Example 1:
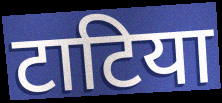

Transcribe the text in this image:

टाटिया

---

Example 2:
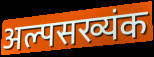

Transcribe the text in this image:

अल्पसख्यंक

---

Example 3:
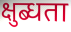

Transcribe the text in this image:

क्षुब्धता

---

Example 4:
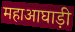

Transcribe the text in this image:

महाआघाड़ी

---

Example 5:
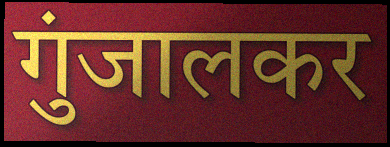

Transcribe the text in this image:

गुंजालकर